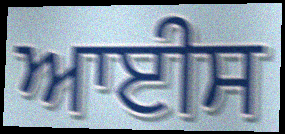
ਆਈਸ